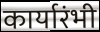
कार्यारंभी